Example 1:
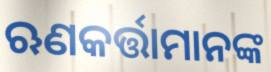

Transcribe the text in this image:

ଋଣକର୍ତ୍ତାମାନଙ୍କ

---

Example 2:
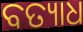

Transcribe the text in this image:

ବତ୍ୟାଧ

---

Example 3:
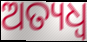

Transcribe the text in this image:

ଅତ୍ୟଧ୍ୱ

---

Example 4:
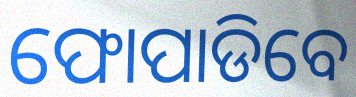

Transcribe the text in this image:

ଫୋପାଡିବେ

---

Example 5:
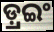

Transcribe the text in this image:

ଡ଼୍ରଇଂ